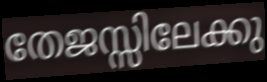
തേജസ്സിലേക്കു